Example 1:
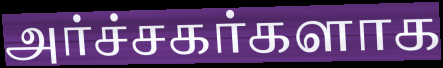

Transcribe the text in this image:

அர்ச்சகர்களாக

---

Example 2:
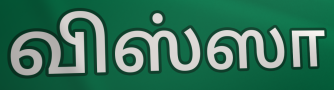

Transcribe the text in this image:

விஸ்ஸா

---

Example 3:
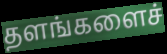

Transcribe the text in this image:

தளங்களைச்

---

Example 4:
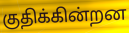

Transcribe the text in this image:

குதிக்கின்றன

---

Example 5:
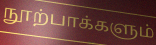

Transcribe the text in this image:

நூற்பாக்களும்